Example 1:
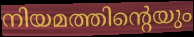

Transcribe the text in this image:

നിയമത്തിന്റെയും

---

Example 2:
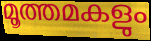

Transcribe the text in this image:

മൂത്തമകളും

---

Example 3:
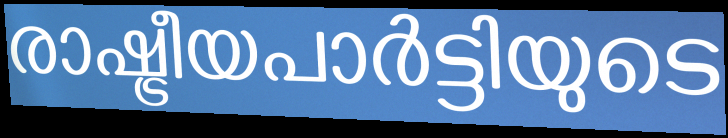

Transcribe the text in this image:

രാഷ്ട്രീയപാർട്ടിയുടെ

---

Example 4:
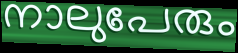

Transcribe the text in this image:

നാലുപേരും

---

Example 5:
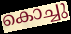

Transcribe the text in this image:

കൊച്ചു